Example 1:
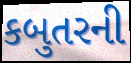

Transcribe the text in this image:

કબુતરની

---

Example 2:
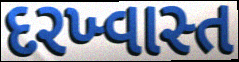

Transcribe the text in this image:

દરખ્વાસ્ત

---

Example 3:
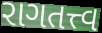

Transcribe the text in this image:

રાગતત્ત્વ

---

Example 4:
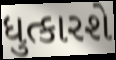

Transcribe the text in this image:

ધુત્કારશે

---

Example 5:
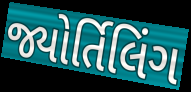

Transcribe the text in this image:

જ્યોર્તિલિંગ